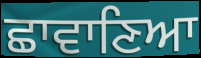
ਛਾਵਾਣਿਆ